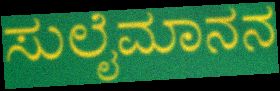
ಸುಲೈಮಾನನ